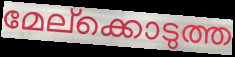
മേല്ക്കൊടുത്ത